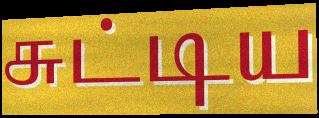
சுட்டிய